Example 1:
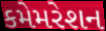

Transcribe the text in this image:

કમેમરેશન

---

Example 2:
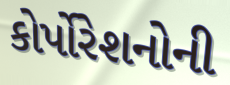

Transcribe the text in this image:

કોર્પોરેશનોની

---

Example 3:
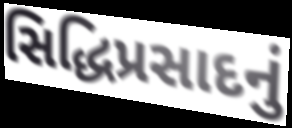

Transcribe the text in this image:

સિદ્ધિપ્રસાદનું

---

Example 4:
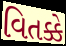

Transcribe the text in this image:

વિતક્કે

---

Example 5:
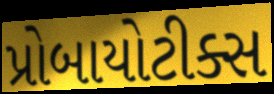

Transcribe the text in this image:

પ્રોબાયોટીક્સ